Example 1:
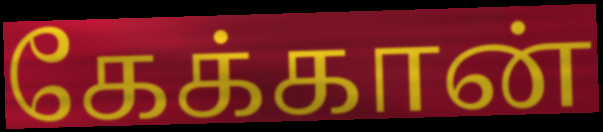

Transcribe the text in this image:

கேக்கான்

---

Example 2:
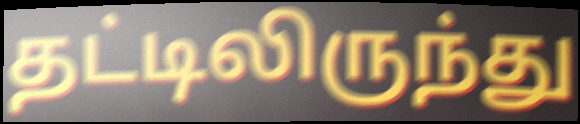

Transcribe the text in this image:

தட்டிலிருந்து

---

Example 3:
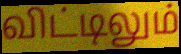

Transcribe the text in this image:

விட்டிலும்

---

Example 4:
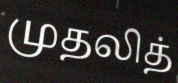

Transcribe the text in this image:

முதலித்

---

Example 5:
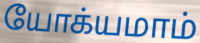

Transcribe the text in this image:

யோக்யமாம்